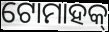
ଟୋମାହକ୍